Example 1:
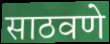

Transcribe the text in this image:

साठवणे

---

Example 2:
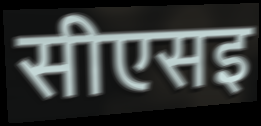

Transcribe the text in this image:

सीएसइ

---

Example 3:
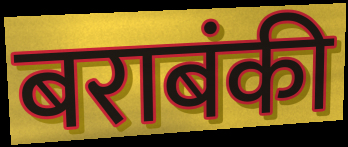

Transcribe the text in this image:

बराबंकी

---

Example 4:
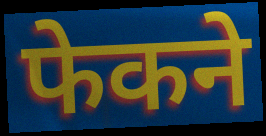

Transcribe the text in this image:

फेकने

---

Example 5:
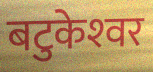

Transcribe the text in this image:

बटुकेश्‍वर